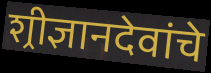
श्रीज्ञानदेवांचे